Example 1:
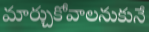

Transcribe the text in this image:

మార్చుకోవాలనుకునే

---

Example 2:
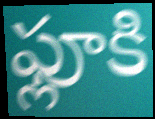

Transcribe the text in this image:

ఫ్లూకి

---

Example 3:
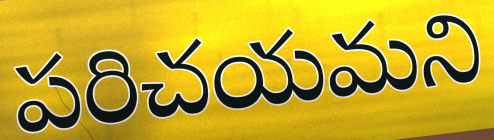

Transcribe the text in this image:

పరిచయమని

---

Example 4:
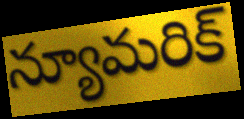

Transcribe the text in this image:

న్యూమరిక్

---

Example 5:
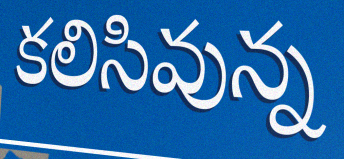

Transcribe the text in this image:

కలిసివున్న